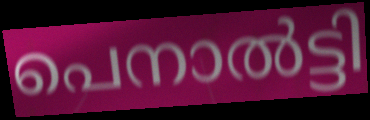
പെനാൽട്ടി